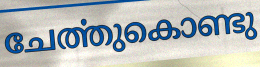
ചേൎത്തുകൊണ്ടു